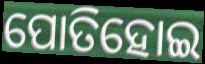
ପୋତିହୋଇ